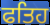
ਫਤਿਹ